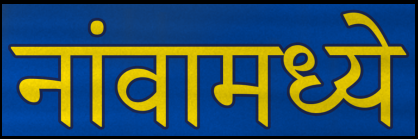
नांवामध्ये